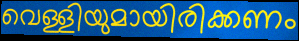
വെള്ളിയുമായിരിക്കണം